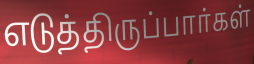
எடுத்திருப்பார்கள்